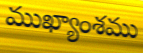
ముఖ్యాంశము